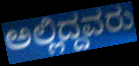
ಅಲ್ಲಿದ್ದವರು